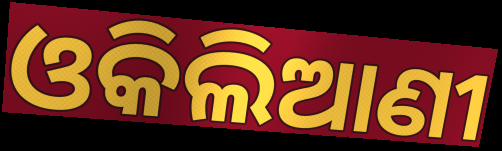
ଓକିଲିଆଣୀ